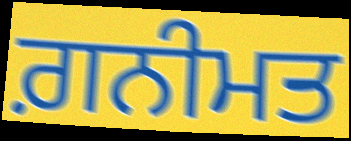
ਗ਼ਨੀਮਤ